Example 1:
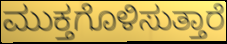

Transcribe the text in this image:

ಮುಕ್ತಗೊಳಿಸುತ್ತಾರೆ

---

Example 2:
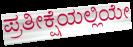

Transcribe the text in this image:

ಪ್ರತೀಕ್ಷೆಯಲ್ಲಿಯೇ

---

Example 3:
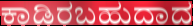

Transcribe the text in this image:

ಕಾಡಿರಬಹುದಾದ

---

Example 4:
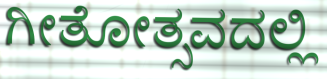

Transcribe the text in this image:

ಗೀತೋತ್ಸವದಲ್ಲಿ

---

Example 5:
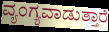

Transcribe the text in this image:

ವ್ಯಂಗ್ಯವಾಡುತ್ತಾರೆ